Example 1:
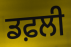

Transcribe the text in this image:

ਡਫ਼ਲੀ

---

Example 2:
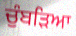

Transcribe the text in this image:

ਚੁੰਬੜਿਆ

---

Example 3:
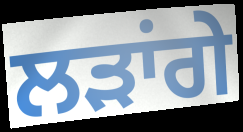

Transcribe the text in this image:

ਲੜਾਂਗੇ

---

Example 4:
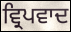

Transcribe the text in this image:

ਵ੍ਰਿਪਵਾਦ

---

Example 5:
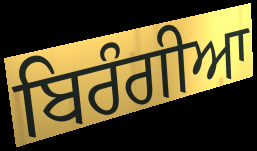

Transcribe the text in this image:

ਬਿਰੰਗੀਆ